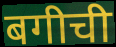
बगीची